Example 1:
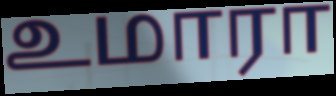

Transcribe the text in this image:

உமாரா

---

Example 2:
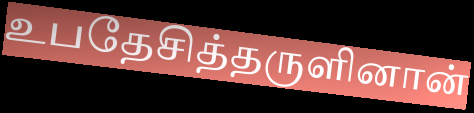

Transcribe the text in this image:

உபதேசித்தருளினான்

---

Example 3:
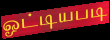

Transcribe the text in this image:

ஓட்டியபடி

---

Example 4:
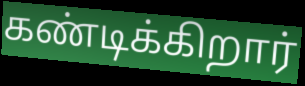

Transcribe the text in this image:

கண்டிக்கிறார்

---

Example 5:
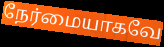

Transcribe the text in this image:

நேர்மையாகவே